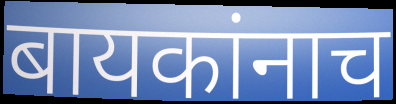
बायकांनाच